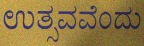
ಉತ್ಸವವೆಂದು